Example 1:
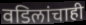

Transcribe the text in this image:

वडिलांचाही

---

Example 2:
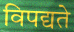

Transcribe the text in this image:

विपद्यते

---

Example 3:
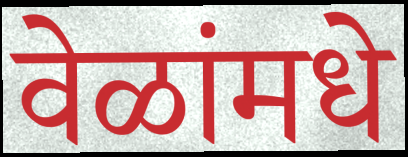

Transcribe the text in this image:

वेळांमधे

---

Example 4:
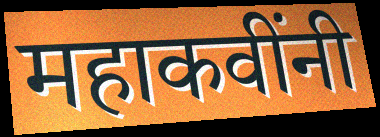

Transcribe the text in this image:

महाकवींनी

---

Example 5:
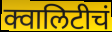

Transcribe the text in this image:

क्वालिटीचं